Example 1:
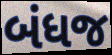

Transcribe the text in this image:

બંધજ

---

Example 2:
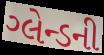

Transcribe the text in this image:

ગ્લેન્ડની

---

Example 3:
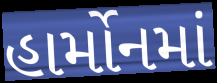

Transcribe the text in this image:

હાર્મોનમાં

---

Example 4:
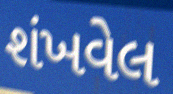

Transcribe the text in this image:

શંખવેલ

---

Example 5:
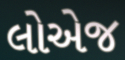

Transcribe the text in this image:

લોએજ